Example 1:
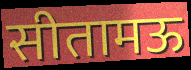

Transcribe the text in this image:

सीतामऊ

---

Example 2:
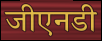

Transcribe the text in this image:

जीएनडी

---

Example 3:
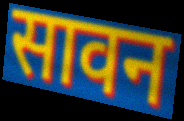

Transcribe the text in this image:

सावन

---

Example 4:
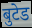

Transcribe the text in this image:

बुटेड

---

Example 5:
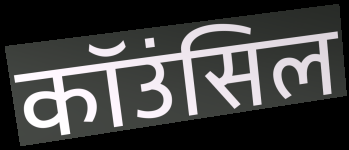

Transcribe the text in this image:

कॉउंसिल